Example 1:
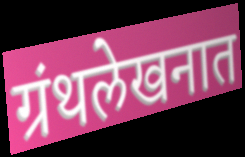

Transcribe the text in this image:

ग्रंथलेखनात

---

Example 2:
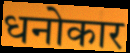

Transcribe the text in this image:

धनोकार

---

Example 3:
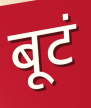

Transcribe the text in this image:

बूटं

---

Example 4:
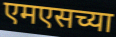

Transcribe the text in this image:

एमएसच्या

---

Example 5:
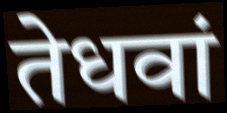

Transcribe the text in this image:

तेधवां